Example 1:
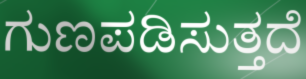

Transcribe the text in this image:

ಗುಣಪಡಿಸುತ್ತದೆ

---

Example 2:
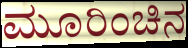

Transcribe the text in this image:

ಮೂರಿಂಚಿನ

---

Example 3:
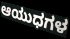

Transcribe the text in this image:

ಆಯುಧಗಳ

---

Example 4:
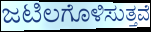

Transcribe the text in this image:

ಜಟಿಲಗೊಳಿಸುತ್ತವೆ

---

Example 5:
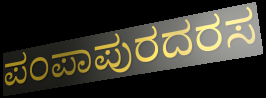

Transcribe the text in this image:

ಪಂಪಾಪುರದರಸ